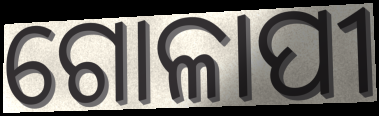
ଗୋଳାପୀ